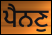
ਪੈਨਣੁ